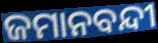
ଜମାନବନ୍ଦୀ